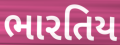
ભારતિય